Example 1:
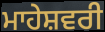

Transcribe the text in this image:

ਮਾਹੇਸ਼ਵਰੀ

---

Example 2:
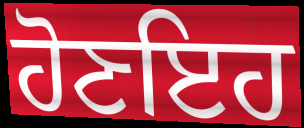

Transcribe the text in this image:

ਹੋਣਇਹ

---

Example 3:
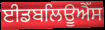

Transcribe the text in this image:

ਈਡਬਲਿਊਐੱਸ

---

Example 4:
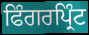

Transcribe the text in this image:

ਫਿੰਗਰਪ੍ਰਿੰਟ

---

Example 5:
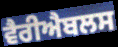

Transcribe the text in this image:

ਵੈਰੀਐਬਲਸ